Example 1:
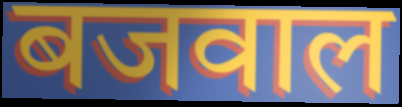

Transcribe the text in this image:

बजवाल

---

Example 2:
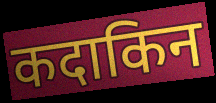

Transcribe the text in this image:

कदाकिन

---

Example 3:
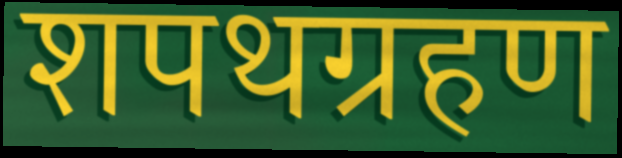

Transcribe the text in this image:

शपथग्रहण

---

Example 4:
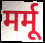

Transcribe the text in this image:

मर्मू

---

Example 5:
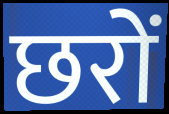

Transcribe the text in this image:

छरों